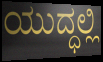
ಯುದ್ಧಲ್ಲಿ